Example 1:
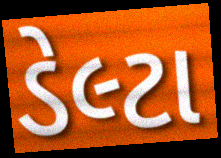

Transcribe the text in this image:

ડેલ્ટા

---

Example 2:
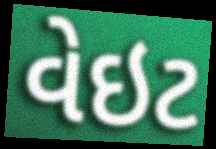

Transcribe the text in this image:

વેઇટ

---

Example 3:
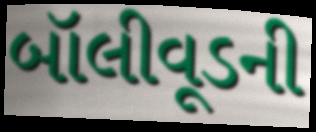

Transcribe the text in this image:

બૉલીવૂડની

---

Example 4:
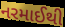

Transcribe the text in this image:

નરમાઈથી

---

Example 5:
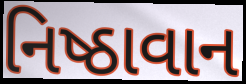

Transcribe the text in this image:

નિષ્ઠાવાન